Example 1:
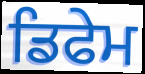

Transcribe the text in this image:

ਡਿਫੇਮ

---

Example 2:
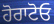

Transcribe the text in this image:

ਹੋਰਾਟੋਓ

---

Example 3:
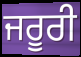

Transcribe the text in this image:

ਜਰੂਰੀ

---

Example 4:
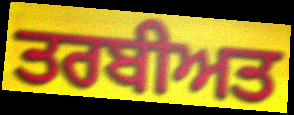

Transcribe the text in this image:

ਤਰਬੀਅਤ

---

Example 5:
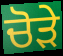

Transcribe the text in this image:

ਚੋੜੇ